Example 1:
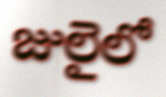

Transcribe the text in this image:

జులైలో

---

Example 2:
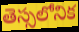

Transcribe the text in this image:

తెస్సలోనిక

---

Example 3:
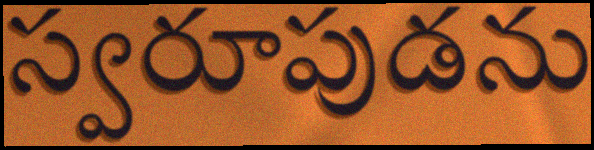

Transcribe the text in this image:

స్వరూపుడను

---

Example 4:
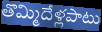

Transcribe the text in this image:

తొమ్మిదేళ్లపాటు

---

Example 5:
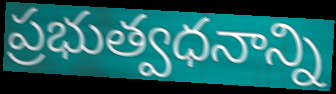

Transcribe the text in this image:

ప్రభుత్వధనాన్ని